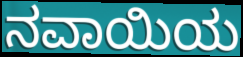
ನವಾಯಿಯ